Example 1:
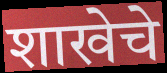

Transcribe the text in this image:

शाखेचे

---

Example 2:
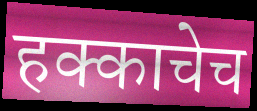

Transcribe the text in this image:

हक्काचेच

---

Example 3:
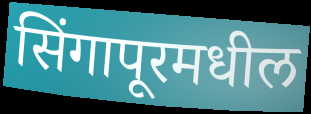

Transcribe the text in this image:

सिंगापूरमधील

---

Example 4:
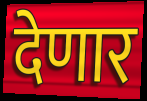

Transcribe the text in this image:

देणार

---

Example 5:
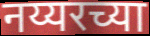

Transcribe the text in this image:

नय्यरच्या